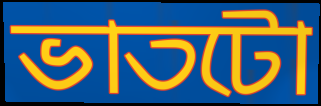
ভাতটো